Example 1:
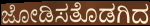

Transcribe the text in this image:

ಜೋಡಿಸತೊಡಗಿದ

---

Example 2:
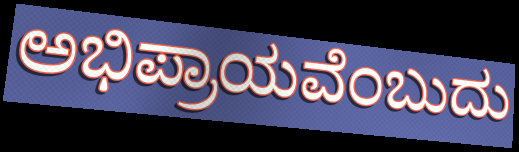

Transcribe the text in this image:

ಅಭಿಪ್ರಾಯವೆಂಬುದು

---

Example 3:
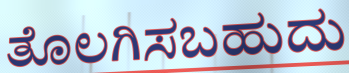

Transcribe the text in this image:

ತೊಲಗಿಸಬಹುದು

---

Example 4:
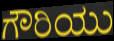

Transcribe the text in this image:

ಗೌರಿಯು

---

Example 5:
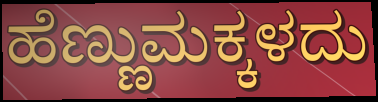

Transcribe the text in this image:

ಹೆಣ್ಣುಮಕ್ಕಳದು